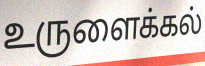
உருளைக்கல்